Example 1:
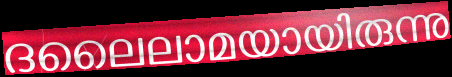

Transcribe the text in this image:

ദലൈലാമയായിരുന്നു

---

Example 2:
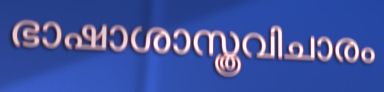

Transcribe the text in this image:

ഭാഷാശാസ്ത്രവിചാരം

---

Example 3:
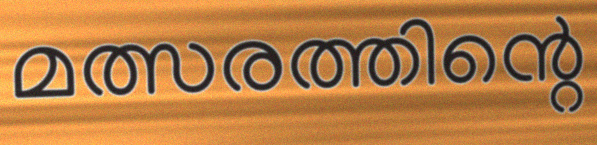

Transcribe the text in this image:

മത്സരത്തിന്റെ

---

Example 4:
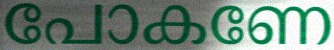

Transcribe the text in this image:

പോകണേ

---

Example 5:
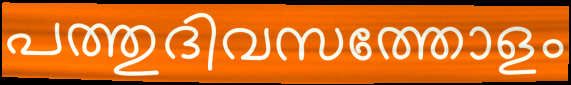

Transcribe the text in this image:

പത്തുദിവസത്തോളം